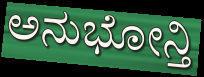
ಅನುಭೋನ್ತಿ